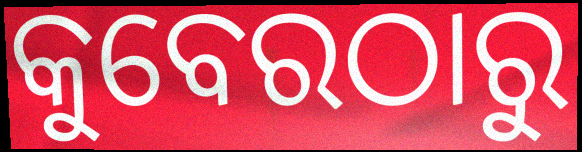
କୁବେରଠାରୁ